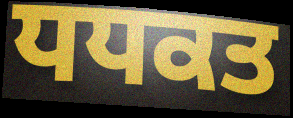
ਧਧਕਤ